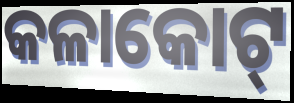
କଳାକୋଟ୍